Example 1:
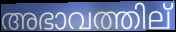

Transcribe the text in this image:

അഭാവത്തില്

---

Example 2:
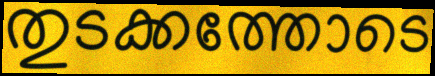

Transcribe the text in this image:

തുടക്കത്തോടെ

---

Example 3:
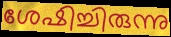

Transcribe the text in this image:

ശേഷിച്ചിരുന്നു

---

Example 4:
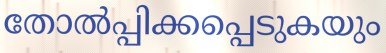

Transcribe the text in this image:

തോൽപ്പിക്കപ്പെടുകയും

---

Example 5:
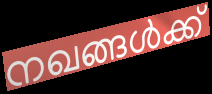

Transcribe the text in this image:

നഖങ്ങൾക്ക്